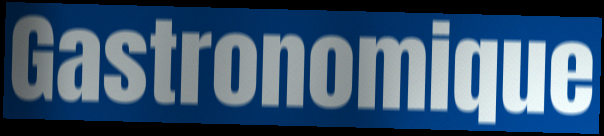
Gastronomique